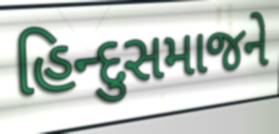
હિન્દુસમાજને